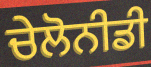
ਚੇਲੋਨੀਡੀ